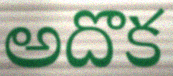
అదొక